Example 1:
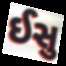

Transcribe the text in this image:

ઈસુ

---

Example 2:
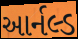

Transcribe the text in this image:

આર્નલ્ડ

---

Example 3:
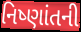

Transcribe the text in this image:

નિષ્ણાંતની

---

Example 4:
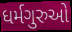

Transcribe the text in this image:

ધર્મગુરુઓ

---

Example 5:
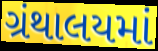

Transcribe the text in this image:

ગ્રંથાલયમાં